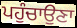
ਪਹੁੰਚਾਉਣਾ